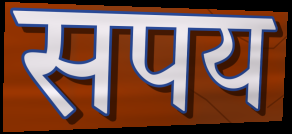
सपय